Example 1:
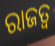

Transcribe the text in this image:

ରାଜତ୍ଵ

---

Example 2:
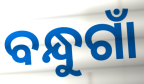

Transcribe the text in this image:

ବନ୍ଧୁଗାଁ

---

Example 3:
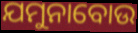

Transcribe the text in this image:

ଯମୁନାବୋଉ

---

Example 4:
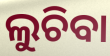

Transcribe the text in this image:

ଲୁଚିବା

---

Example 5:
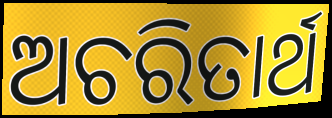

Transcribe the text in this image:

ଅଚରିତାର୍ଥ